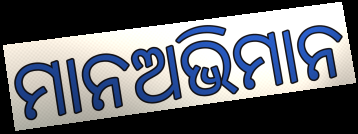
ମାନଅଭିମାନ